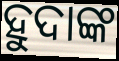
ହୁଦାଙ୍କ